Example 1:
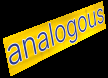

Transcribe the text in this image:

analogous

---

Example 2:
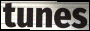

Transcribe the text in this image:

tunes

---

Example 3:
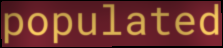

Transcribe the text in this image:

populated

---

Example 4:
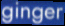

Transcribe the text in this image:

ginger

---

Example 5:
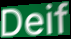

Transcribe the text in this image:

Deif